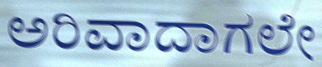
ಅರಿವಾದಾಗಲೇ